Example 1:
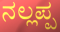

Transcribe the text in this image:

ನಲ್ಲಪ್ಪ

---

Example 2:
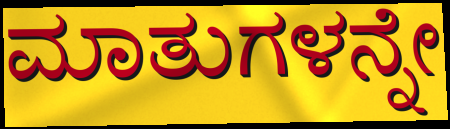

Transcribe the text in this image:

ಮಾತುಗಳನ್ನೇ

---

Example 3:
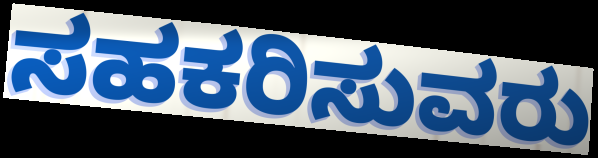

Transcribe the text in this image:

ಸಹಕರಿಸುವರು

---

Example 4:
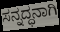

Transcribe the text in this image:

ಸನ್ನದ್ಧನಾಗಿ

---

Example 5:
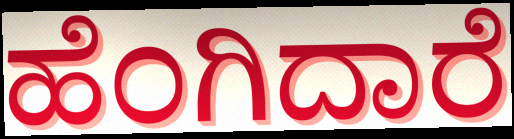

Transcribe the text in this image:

ಹೆಂಗಿದಾರೆ